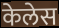
केलेस